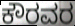
ಕೌರವರ